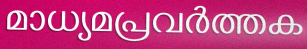
മാധ്യമപ്രവർത്തക